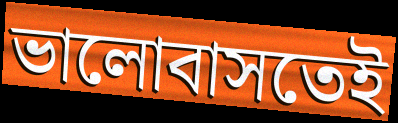
ভালোবাসতেই